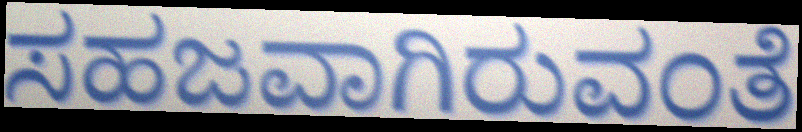
ಸಹಜವಾಗಿರುವಂತೆ